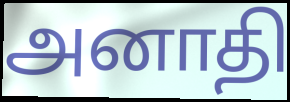
அனாதி